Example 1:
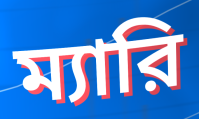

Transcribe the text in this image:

ম্যারি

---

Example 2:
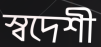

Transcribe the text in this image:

স্বদেশী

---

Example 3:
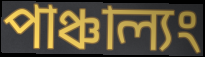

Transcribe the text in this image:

পাঞ্চাল্যং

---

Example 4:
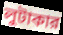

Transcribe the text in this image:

লুটাকার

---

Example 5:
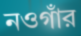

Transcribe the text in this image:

নওগাঁর